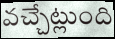
వచ్చేట్లుంది